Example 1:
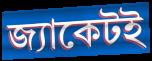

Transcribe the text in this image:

জ্যাকেটই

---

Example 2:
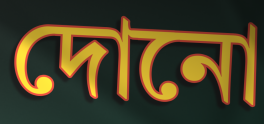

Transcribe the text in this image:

দোনো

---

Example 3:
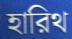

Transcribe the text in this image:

হারিথ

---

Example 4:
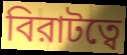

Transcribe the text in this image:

বিরাটত্বে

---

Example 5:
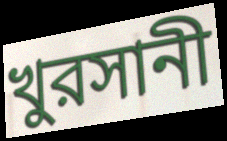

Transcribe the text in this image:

খুরসানী